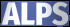
ALPS